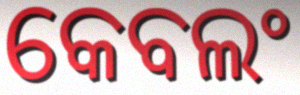
କେବଲଂ